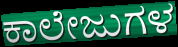
ಕಾಲೇಜುಗಳ